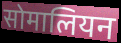
सोमालियन